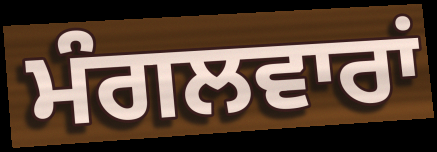
ਮੰਗਲਵਾਰਾਂ